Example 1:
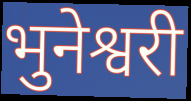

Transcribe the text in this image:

भुनेश्वरी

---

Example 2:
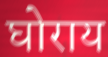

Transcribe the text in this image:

घोराय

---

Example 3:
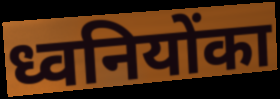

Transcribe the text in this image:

ध्वनियोंका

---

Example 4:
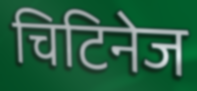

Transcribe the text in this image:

चिटिनेज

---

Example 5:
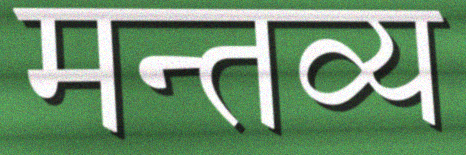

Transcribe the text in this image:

मन्तव्य